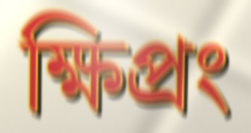
ক্ষিপ্রং